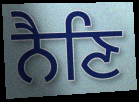
ਨੈਣਿ